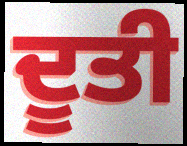
ਦੂਤੀ